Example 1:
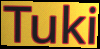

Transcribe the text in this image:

Tuki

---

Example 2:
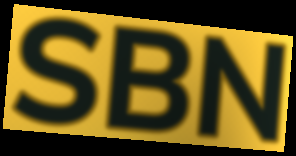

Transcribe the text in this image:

SBN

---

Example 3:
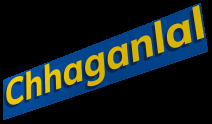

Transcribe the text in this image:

Chhaganlal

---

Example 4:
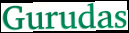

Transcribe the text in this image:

Gurudas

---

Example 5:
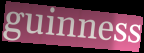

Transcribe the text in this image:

guinness